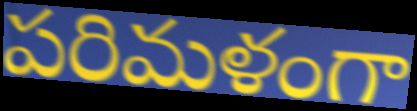
పరిమళంగా